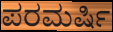
ಪರಮರ್ಷಿ